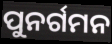
ପୁନର୍ଗମନ